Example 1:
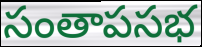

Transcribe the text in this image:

సంతాపసభ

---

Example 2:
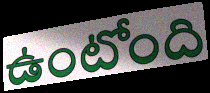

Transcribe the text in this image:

ఉంటోంది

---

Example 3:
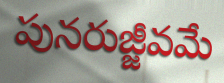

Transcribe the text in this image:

పునరుజ్జీవమే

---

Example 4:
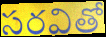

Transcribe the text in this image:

సరవితో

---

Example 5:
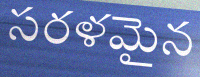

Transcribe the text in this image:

సరళమైన